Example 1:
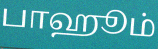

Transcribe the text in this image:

பாஹூம்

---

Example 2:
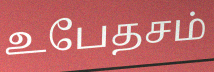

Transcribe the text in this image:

உபேதசம்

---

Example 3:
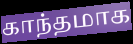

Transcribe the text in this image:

காந்தமாக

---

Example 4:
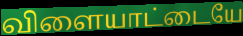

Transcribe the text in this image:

விளையாட்டையே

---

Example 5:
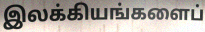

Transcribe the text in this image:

இலக்கியங்களைப்